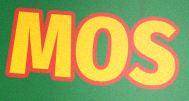
MOS